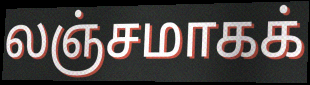
லஞ்சமாகக்